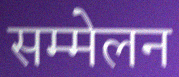
सम्मेलन